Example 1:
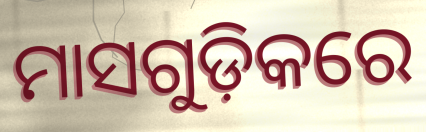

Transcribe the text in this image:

ମାସଗୁଡ଼ିକରେ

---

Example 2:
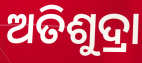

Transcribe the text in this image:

ଅତିଶୁଦ୍ରା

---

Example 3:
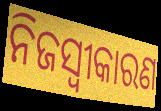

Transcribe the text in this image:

ନିଜସ୍ବୀକାରଣ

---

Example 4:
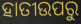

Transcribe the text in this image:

ହାତୀଉପରୁ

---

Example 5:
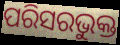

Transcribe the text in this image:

ପରିସରଭୁକ୍ତ